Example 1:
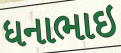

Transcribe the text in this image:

ધનાભાઇ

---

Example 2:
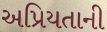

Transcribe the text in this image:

અપ્રિયતાની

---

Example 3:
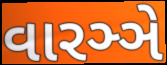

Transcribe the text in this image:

વારઞ્ઞે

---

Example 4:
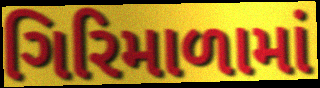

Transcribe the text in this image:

ગિરિમાળામાં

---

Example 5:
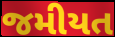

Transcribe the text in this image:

જમીયત